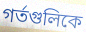
গর্তগুলিকে